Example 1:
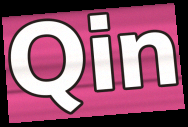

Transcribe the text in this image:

Qin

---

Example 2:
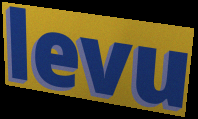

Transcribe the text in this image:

levu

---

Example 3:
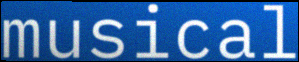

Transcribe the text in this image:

musical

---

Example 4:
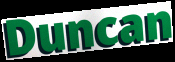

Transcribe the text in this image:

Duncan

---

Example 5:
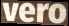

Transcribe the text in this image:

vero